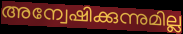
അന്വേഷിക്കുന്നുമില്ല